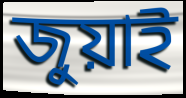
জুয়াই